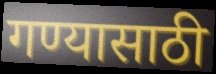
गण्यासाठी